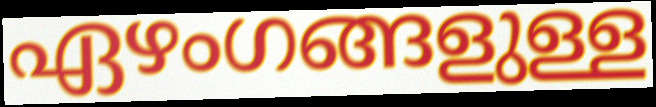
ഏഴംഗങ്ങളുള്ള